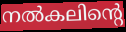
നൽകലിന്റെ